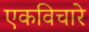
एकविचारे